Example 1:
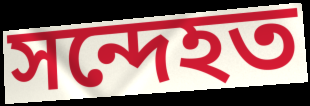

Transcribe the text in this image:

সন্দেহত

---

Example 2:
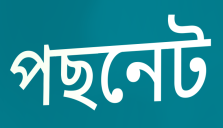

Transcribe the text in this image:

পছনেট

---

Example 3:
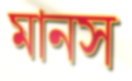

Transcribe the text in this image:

মানস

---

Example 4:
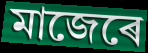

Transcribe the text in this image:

মাজেৰে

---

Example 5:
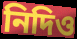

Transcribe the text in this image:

নিদিও